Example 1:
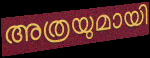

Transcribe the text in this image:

അത്രയുമായി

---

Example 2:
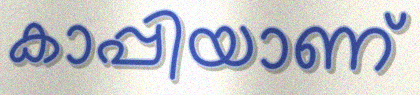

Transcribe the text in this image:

കാപ്പിയാണ്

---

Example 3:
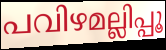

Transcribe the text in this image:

പവിഴമല്ലിപ്പൂ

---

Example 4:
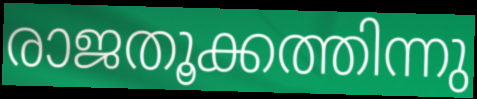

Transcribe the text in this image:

രാജതൂക്കത്തിന്നു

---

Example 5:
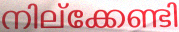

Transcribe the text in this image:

നില്ക്കേണ്ടി